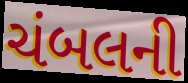
ચંબલની